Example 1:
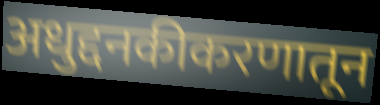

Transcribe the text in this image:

अधुद्दनकीकरणातून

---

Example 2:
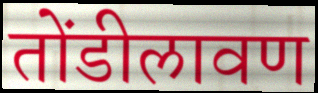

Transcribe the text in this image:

तोंडीलावण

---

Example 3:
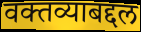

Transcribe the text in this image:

वक्तव्याबद्दल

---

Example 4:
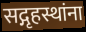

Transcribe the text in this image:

सद्गृहस्थांना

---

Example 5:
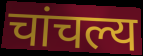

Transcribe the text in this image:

चांचल्य